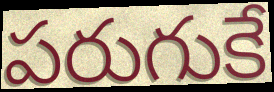
పరుగుకే